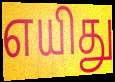
எயிது